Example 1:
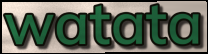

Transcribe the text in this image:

watata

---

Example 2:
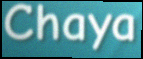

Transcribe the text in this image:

Chaya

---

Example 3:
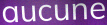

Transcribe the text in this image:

aucune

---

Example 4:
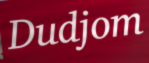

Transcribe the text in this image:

Dudjom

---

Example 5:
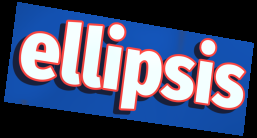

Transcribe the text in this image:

ellipsis